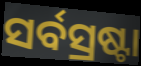
ସର୍ବସ୍ରଷ୍ଟା